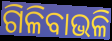
ଗିଳିବାଭଳି